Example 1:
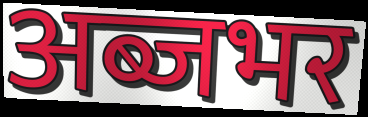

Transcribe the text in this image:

अब्जभर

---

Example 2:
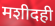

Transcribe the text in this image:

मशीदही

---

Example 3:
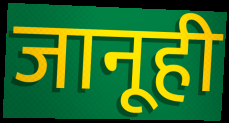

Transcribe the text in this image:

जानूही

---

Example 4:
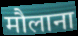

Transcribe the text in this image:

मौलाना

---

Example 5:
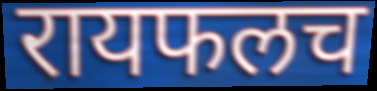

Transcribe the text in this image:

रायफलच